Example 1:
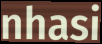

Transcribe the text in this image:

nhasi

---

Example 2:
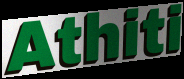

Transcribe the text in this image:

Athiti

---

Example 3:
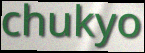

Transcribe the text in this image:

chukyo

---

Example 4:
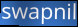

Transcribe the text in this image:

swapnil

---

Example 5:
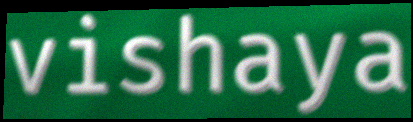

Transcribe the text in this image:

vishaya